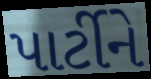
પાર્ટીને